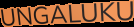
UNGALUKU